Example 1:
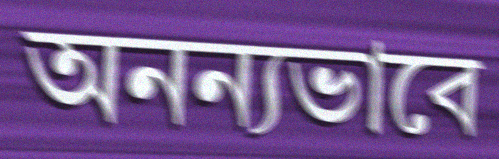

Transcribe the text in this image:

অনন্যভাবে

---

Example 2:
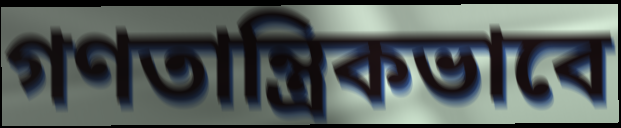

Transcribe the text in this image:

গণতান্ত্রিকভাবে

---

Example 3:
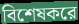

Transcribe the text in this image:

বিশেষকরে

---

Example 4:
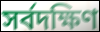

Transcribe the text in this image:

সর্বদক্ষিণ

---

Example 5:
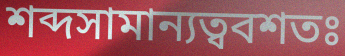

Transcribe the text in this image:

শব্দসামান্যত্ববশতঃ